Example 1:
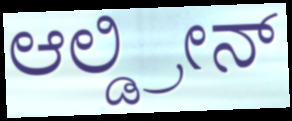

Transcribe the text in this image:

ಆಲ್ಡ್ರೀನ್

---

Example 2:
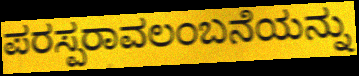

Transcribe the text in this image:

ಪರಸ್ಪರಾವಲಂಬನೆಯನ್ನು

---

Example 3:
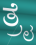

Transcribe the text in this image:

ತ್ರೈ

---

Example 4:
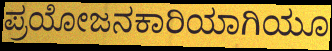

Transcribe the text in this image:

ಪ್ರಯೋಜನಕಾರಿಯಾಗಿಯೂ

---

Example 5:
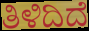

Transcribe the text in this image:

ತಿಳಿದಿದೆ